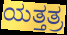
ಯತ್ತತ್ರ